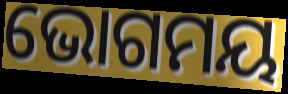
ଭୋଗମୟ